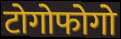
टोगोफोगो